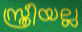
സ്ത്രീയല്ല